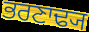
ਭਰਣਾਢ੍ਯ